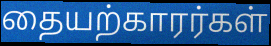
தையற்காரர்கள்